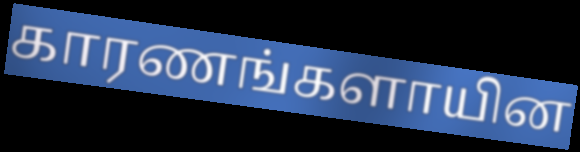
காரணங்களாயின